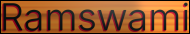
Ramswami